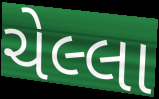
ચેલ્લા